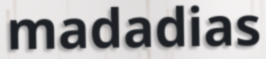
madadias